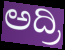
ಅದ್ರಿ